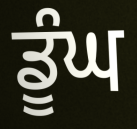
ਡੂੰਘ